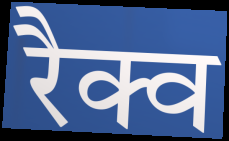
रैक्व